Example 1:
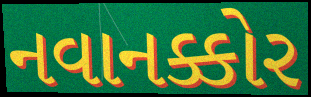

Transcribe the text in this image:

નવાનક્કોર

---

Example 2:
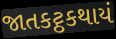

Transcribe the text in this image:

જાતકટ્ઠકથાયં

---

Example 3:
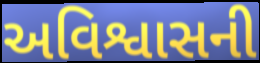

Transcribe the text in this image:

અવિશ્વાસની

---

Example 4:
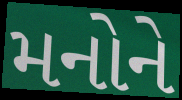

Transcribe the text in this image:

મનોને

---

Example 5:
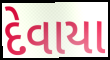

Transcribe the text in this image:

દેવાયા